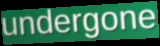
undergone